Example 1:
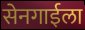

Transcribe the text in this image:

सेनगाईला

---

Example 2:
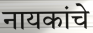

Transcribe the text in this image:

नायकांचे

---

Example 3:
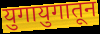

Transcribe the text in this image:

युगायुगातून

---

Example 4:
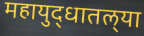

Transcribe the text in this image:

महायुद्धातल्या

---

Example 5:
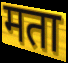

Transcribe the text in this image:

मता